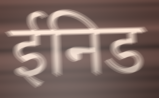
ईनिड